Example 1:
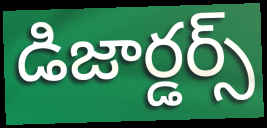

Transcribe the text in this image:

డిజార్డర్స్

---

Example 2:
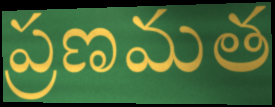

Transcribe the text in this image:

ప్రణమత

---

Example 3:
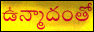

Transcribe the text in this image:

ఉన్మాదంతో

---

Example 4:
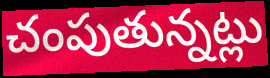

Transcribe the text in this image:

చంపుతున్నట్లు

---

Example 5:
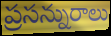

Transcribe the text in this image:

ప్రసన్నురాలు